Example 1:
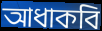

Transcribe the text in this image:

আধাকবি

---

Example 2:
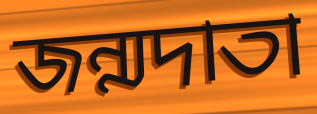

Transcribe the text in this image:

জন্মদাতা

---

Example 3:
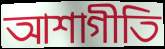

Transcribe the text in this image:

আশাগীতি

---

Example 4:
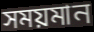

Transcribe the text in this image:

সময়মান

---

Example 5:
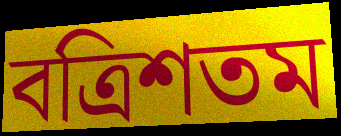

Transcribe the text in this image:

বত্রিশতম